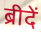
ब्रीदें